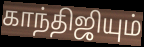
காந்திஜியும்